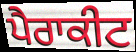
ਪੈਰਾਕੀਟ